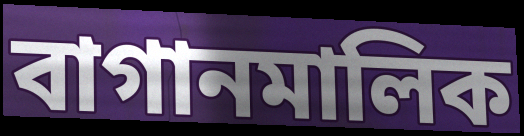
বাগানমালিক